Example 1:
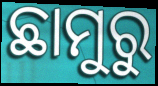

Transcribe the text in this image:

ଛାମୁରୁ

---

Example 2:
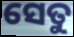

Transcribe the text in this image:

ସେତୁ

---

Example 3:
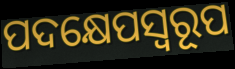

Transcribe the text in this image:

ପଦକ୍ଷେପସ୍ୱରୂପ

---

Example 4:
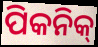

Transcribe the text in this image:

ପିକନିକ୍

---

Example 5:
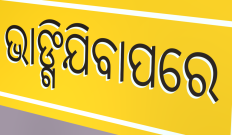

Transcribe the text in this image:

ଭାଙ୍ଗିଯିବାପରେ